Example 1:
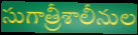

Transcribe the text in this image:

సుగాత్రీశాలీనుల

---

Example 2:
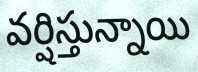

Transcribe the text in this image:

వర్షిస్తున్నాయి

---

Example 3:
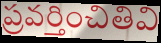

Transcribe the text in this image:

ప్రవర్తించితివి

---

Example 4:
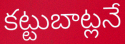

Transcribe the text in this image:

కట్టుబాట్లనే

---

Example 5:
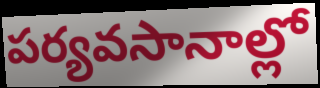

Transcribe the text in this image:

పర్యవసానాల్లో